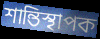
শান্তিস্থাপক